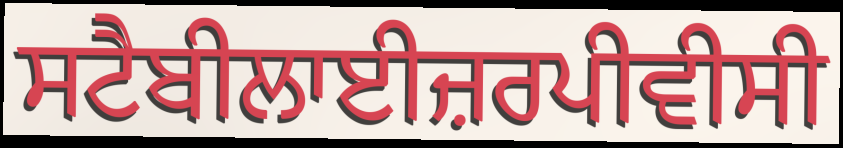
ਸਟੈਬੀਲਾਈਜ਼ਰਪੀਵੀਸੀ